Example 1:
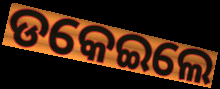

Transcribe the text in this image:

ଡକେଇଲେ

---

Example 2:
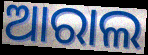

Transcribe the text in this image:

ଆରାଲ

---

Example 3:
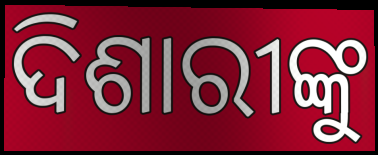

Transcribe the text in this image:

ଦିଶାରୀଙ୍କୁ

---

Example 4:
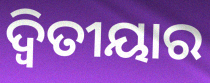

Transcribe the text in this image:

ଦ୍ଵିତୀୟାର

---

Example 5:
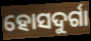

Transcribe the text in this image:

ହୋସଦୁର୍ଗା